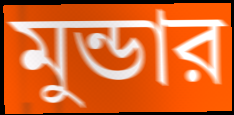
মুন্ডার